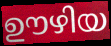
ഊഴിയ